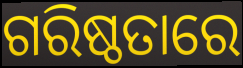
ଗରିଷ୍ଠତାରେ